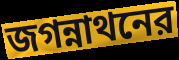
জগন্নাথনের